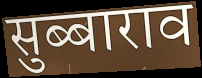
सुब्बाराव